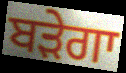
ਬੜੇਗਾ